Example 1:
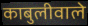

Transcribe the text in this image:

काबुलीवाले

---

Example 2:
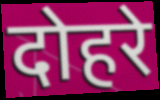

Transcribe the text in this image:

दोहरे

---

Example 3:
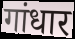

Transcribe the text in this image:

गांधार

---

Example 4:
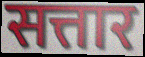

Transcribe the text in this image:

सत्तार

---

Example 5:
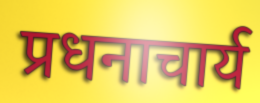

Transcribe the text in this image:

प्रधनाचार्य